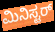
ಮಿನಿಸ್ಟರ್